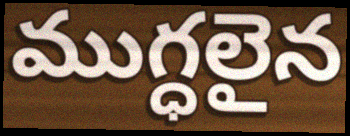
ముగ్ధలైన